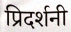
प्रिदर्शनी